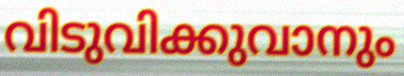
വിടുവിക്കുവാനും